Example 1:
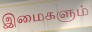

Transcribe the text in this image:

இமைகளும்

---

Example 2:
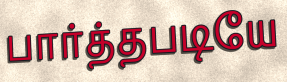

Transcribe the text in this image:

பார்த்தபடியே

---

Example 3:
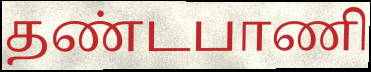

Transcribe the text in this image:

தண்டபாணி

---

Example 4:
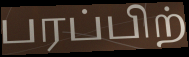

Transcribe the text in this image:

பரப்பிற்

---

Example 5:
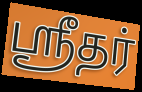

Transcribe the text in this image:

ஸ்ரீதர்